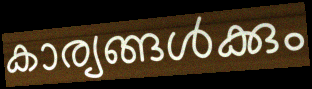
കാര്യങ്ങൾക്കും